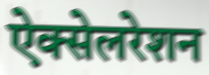
ऐक्सेलरेशन